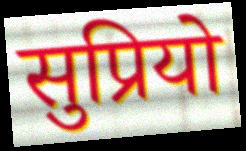
सुप्रियो